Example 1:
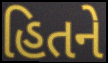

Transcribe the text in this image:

હિતને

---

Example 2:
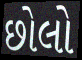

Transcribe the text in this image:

છોલો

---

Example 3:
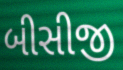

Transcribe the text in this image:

બીસીજી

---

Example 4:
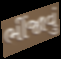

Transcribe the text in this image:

ભીંજાવું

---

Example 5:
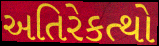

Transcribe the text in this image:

અતિરેકત્થો